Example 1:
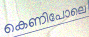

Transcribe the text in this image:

കെണിപോലെ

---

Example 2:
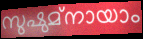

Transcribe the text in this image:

സുഷുമ്നായാം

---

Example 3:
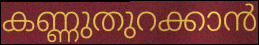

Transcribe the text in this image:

കണ്ണുതുറക്കാൻ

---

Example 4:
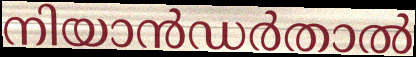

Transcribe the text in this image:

നിയാൻഡർതാൽ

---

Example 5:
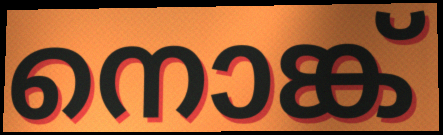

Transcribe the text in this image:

നൊങ്ക്